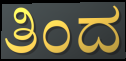
ತಿಂದ